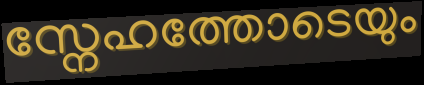
സ്നേഹത്തോടെയും